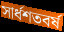
সার্ধশতবর্ষ